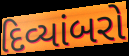
દિવ્યાંબરો